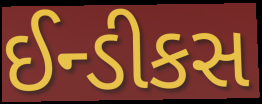
ઈન્ડીકસ